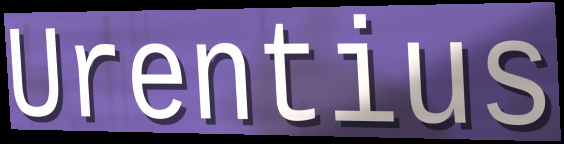
Urentius